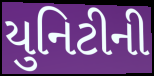
યુનિટીની